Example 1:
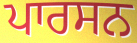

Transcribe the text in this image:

ਪਾਰਸਨ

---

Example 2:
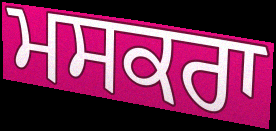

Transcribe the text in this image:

ਮਸਕਰਾ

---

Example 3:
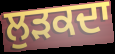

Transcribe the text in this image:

ਲੁੜਕਦਾ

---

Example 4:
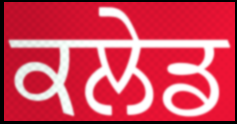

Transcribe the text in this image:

ਕਲੇਡ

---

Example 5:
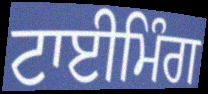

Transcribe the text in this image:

ਟਾਈਮਿੰਗ